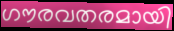
ഗൗരവതരമായി